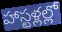
హాస్టళ్లల్లో